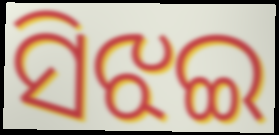
ସିଝଇ